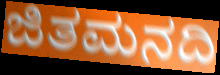
ಜಿತಮನದಿ